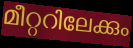
മീറ്ററിലേക്കും